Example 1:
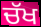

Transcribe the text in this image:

ਚੱਖ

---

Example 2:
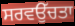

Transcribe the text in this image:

ਸਰਵਉੱਚਤਾ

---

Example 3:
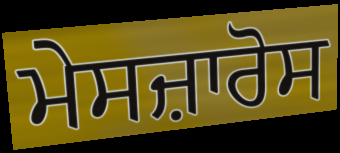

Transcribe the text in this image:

ਮੇਸਜ਼ਾਰੋਸ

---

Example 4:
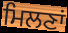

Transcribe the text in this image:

ਮਿਲਣਾਂ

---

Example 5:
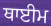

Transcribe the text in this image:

ਥਾਈਮ